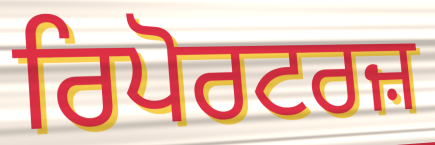
ਰਿਪੋਰਟਰਜ਼